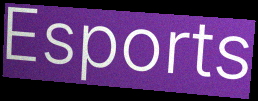
Esports